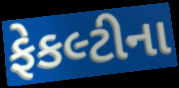
ફેકલ્ટીના